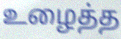
உழைத்த